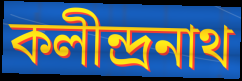
কলীন্দ্রনাথ